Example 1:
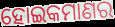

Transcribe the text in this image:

ହୋଇକମାଣର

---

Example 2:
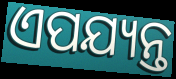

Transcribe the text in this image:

ଏପଯ୍ୟନ୍ତ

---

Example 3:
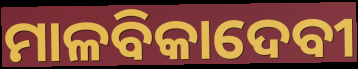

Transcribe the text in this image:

ମାଳବିକାଦେବୀ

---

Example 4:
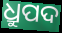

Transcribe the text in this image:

ଧ୍ରୁପଦ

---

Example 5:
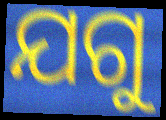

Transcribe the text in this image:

ଯଗୁ